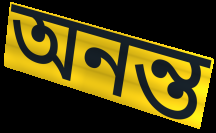
অনন্ত